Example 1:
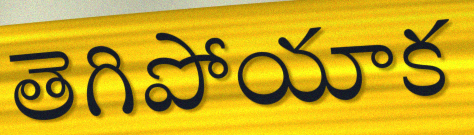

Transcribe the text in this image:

తెగిపోయాక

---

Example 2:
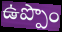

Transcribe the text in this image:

ఉప్పొం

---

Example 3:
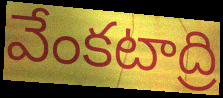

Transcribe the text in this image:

వేంకటాద్రి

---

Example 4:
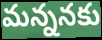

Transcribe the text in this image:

మన్ననకు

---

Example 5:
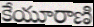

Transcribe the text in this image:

కేయూరాణి